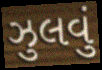
ઝુલવું